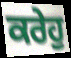
ਕਰੇਹੁ